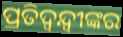
ପ୍ରତିଦ୍ୱନ୍ଦ୍ୱୀଙ୍କର